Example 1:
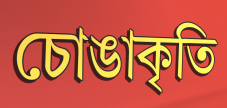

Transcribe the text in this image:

চোঙাকৃতি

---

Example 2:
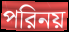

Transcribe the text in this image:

পরিনয়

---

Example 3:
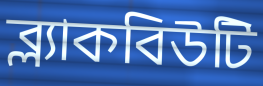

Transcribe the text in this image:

ব্ল্যাকবিউটি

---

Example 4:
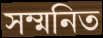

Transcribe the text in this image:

সম্মনিত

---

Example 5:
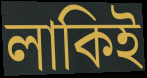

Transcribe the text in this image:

লাকিই